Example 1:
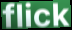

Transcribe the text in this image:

flick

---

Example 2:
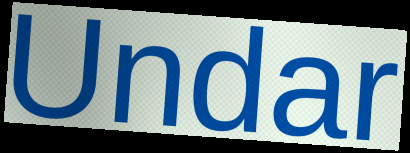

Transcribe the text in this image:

Undar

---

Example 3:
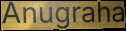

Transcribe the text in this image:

Anugraha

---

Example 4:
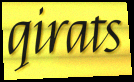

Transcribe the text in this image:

qirats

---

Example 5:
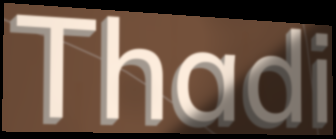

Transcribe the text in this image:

Thadi